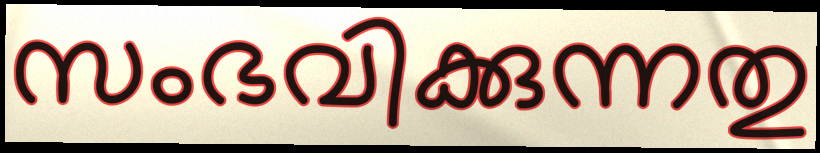
സംഭവിക്കുന്നതു